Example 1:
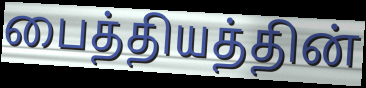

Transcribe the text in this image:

பைத்தியத்தின்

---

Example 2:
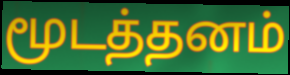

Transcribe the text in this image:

மூடத்தனம்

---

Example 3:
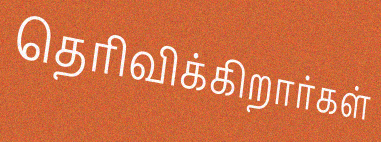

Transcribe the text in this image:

தெரிவிக்கிறார்கள்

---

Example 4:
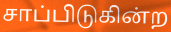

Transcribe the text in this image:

சாப்பிடுகின்ற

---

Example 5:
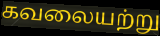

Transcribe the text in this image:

கவலையற்று